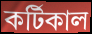
কর্টিকাল